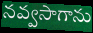
నవ్వసాగాను